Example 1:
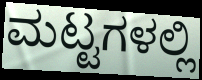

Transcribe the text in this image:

ಮಟ್ಟಗಳಲ್ಲಿ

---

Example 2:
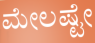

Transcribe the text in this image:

ಮೇಲಷ್ಟೇ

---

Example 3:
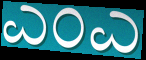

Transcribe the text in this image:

ಎಂಎ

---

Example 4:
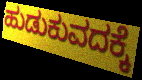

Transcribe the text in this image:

ಹುಡುಕುವದಕ್ಕೆ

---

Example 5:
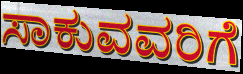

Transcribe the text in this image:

ಸಾಕುವವರಿಗೆ